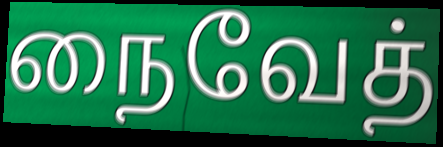
நைவேத்